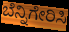
ಬೆನ್ನಿಗೇರಿಸಿ